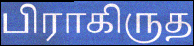
பிராகிருத